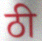
ठी